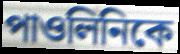
পাওলিনিকে